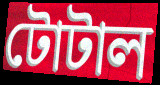
টোটাল